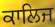
ਕਾਲਿਜ